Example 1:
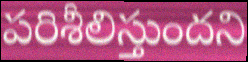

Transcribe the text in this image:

పరిశీలిస్తుందని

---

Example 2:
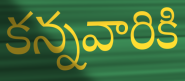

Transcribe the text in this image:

కన్నవారికి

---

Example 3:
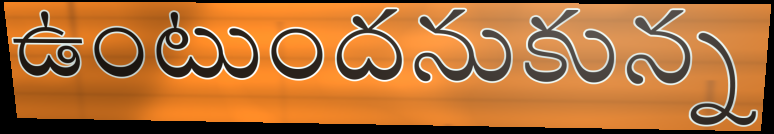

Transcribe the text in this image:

ఉంటుందనుకున్న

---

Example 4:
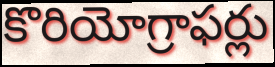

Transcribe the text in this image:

కొరియోగ్రాఫర్లు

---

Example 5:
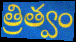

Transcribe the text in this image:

త్రిత్వం